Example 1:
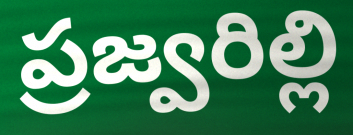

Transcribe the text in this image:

ప్రజ్వరిల్లి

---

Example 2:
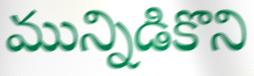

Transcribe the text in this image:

మున్నిడికొని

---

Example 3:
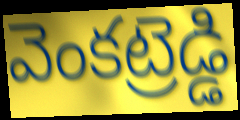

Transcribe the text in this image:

వెంకట్రెడ్డి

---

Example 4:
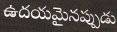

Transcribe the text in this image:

ఉదయమైనప్పుడు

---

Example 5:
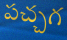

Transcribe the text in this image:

పచ్చగ